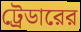
ট্রেডারের